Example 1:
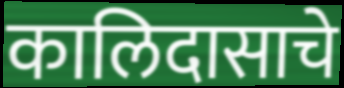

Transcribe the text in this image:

कालिदासाचे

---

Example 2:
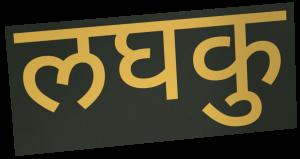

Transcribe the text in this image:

लघकु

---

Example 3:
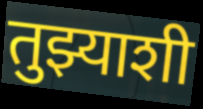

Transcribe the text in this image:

तुझ्याशी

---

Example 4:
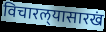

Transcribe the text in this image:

विचारल्यासारखं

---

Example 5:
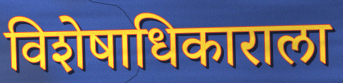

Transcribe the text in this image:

विशेषाधिकाराला